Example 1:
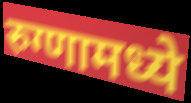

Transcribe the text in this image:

रुग्णामध्ये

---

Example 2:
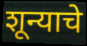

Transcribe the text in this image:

शून्याचे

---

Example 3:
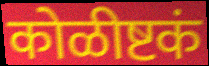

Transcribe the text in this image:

कोळीष्टकं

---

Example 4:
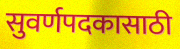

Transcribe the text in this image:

सुवर्णपदकासाठी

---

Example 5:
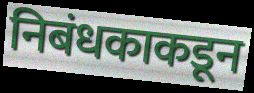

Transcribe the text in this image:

निबंधकाकडून